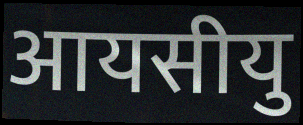
आयसीयु